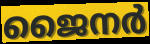
ജൈനർ